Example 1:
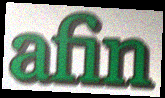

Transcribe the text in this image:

afin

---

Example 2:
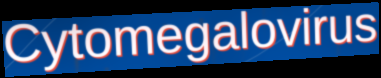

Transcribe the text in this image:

Cytomegalovirus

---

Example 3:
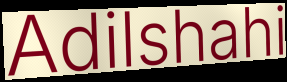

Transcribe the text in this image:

Adilshahi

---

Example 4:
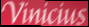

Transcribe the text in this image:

Vinicius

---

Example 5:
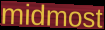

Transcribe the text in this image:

midmost